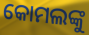
କୋମଲଙ୍କୁ